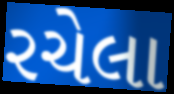
રચેલા